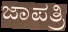
ಜಾಪತ್ರಿ